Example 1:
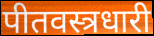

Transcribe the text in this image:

पीतवस्त्रधारी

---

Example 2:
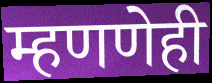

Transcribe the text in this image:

म्हणणेही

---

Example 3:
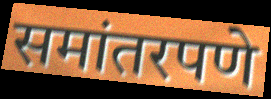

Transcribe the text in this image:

समांतरपणे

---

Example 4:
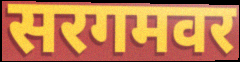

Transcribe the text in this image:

सरगमवर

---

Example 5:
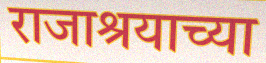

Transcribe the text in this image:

राजाश्रयाच्या